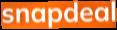
snapdeal